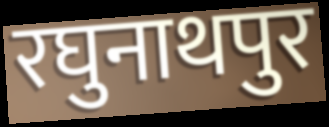
रघुनाथपुर